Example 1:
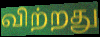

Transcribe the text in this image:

விற்றது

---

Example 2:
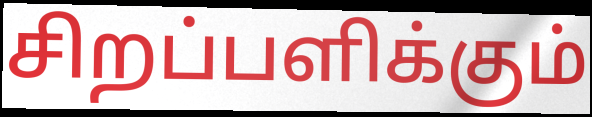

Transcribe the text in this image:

சிறப்பளிக்கும்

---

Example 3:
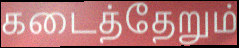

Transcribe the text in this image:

கடைத்தேறும்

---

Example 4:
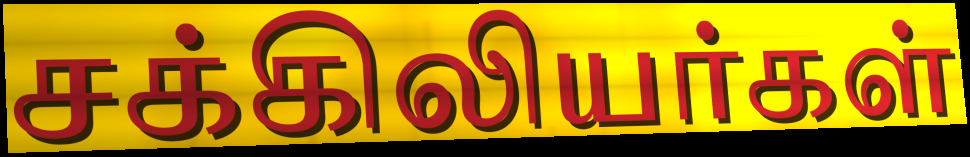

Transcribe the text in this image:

சக்கிலியர்கள்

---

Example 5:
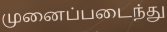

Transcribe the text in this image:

முனைப்படைந்து